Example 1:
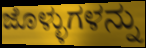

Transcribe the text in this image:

ಜೊಳ್ಳುಗಳನ್ನು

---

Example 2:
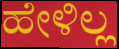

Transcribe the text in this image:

ಹೇಳಿಲ್ಲ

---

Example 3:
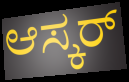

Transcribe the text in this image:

ಆಸ್ಕರ್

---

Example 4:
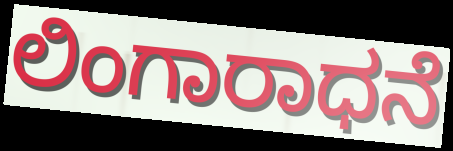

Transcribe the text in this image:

ಲಿಂಗಾರಾಧನೆ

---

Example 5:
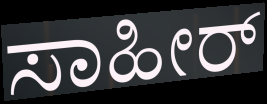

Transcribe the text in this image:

ಸಾಹೀರ್